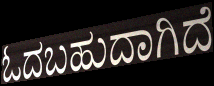
ಓದಬಹುದಾಗಿದೆ